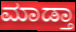
ಮಾಡ್ತಾ